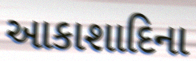
આકાશાદિના